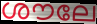
ശൗലേ